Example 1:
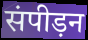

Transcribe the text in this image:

संपीड़न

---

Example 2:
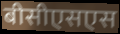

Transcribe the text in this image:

बीसीएसएस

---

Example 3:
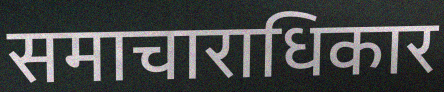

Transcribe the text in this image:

समाचाराधिकार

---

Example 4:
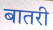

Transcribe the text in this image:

बातरी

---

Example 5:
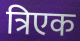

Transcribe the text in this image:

त्रिएक